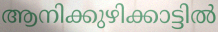
ആനിക്കുഴിക്കാട്ടിൽ